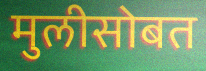
मुलीसोबत